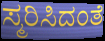
ಸ್ಮರಿಸಿದಂತೆ